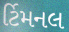
ર્ટિમનલ